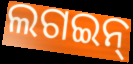
ଲଗଇନ୍